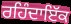
ਰਹਿੰਦਾਇੱਕ